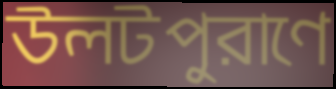
উলটপুরাণে